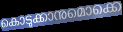
കൊടുക്കാനുമൊക്കെ